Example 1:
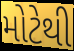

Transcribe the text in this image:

મોટેથી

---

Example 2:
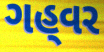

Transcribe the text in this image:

ગહ્‌વર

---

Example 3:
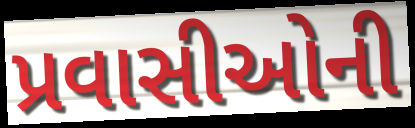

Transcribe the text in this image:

પ્રવાસીઓની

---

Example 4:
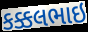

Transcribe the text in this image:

કક્કલભાઇ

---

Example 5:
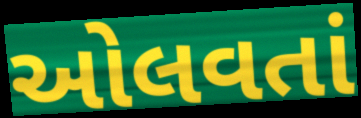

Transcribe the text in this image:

ઓલવતાં